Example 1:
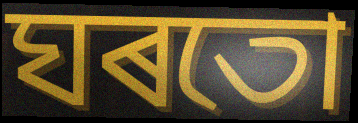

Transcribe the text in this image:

ঘৰতো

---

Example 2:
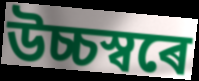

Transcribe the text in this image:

উচ্চস্বৰে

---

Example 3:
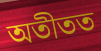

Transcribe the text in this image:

অতীতত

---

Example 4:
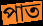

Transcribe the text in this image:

পাত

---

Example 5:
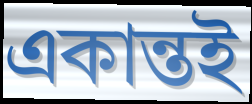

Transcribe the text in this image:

একান্তই